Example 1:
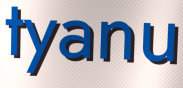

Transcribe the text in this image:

tyanu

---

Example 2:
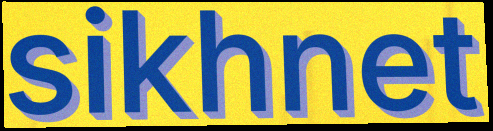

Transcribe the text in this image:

sikhnet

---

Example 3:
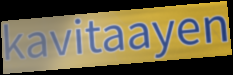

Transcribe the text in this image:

kavitaayen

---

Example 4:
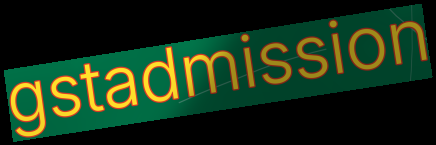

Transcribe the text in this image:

gstadmission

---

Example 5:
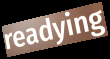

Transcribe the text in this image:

readying